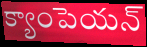
క్యాంపెయన్